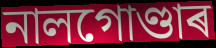
নালগোণ্ডাৰ